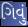
ગિવું